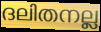
ദലിതനല്ല